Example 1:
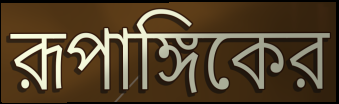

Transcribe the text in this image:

রূপাঙ্গিকের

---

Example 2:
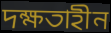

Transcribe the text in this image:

দক্ষতাহীন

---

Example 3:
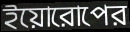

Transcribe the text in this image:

ইয়োরোপের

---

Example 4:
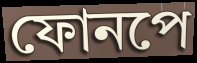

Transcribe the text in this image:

ফোনপে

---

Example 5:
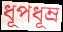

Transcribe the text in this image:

ধূপধূম্র